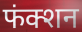
फंक्शन